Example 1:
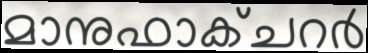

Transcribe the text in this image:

മാനുഫാക്ചറർ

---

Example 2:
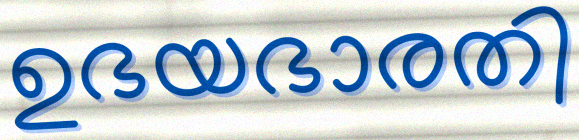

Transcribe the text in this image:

ഉഭയഭാരതി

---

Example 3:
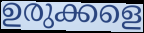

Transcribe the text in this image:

ഉരുക്കളെ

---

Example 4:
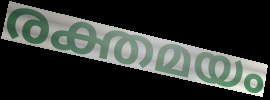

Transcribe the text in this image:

രക്തമയം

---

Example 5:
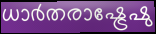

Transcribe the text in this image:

ധാർതരാഷ്ട്രേഷു